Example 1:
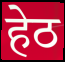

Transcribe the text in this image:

हेठ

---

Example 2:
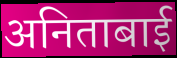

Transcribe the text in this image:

अनिताबाई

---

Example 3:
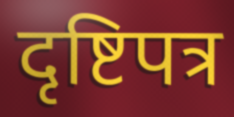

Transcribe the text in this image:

दृष्टिपत्र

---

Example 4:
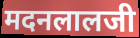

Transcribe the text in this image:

मदनलालजी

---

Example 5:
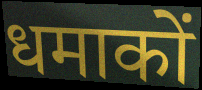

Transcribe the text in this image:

धमाकों